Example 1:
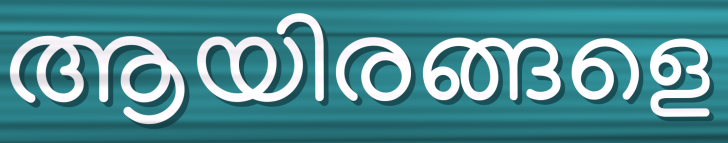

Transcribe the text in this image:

ആയിരങ്ങളെ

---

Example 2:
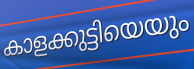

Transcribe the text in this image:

കാളക്കുട്ടിയെയും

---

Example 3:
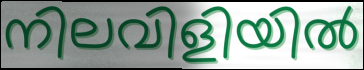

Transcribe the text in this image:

നിലവിളിയിൽ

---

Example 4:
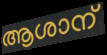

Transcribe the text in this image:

ആശാന്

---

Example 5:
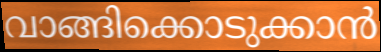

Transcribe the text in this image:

വാങ്ങിക്കൊടുക്കാൻ